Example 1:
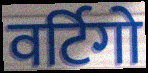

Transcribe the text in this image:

वर्टिगो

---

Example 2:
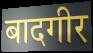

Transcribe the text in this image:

बादगीर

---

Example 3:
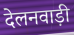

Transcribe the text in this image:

देलनवाड़ी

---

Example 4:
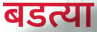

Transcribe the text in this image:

बडत्या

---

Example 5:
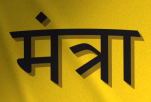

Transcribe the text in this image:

मंत्रा